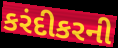
કરંદીકરની